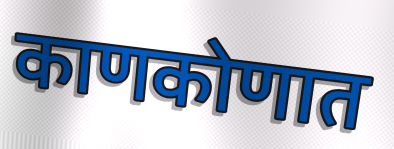
काणकोणात